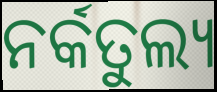
ନର୍କତୁଲ୍ୟ